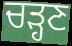
ਚੜ੍ਹਣ